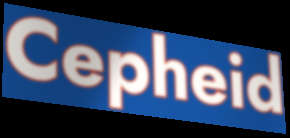
Cepheid